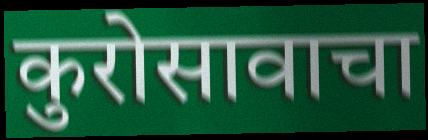
कुरोसावाचा